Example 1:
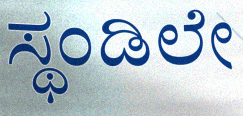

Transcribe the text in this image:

ಸ್ಥಂಡಿಲೇ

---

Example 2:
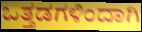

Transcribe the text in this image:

ಒತ್ತಡಗಳಿಂದಾಗಿ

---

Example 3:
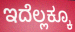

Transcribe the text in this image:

ಇದೆಲ್ಲಕ್ಕೂ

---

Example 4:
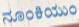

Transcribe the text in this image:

ನೂಂಕಿಯುಂ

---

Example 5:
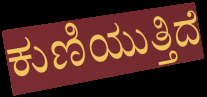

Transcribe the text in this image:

ಕುಣಿಯುತ್ತಿದೆ